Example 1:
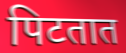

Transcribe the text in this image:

पिटतात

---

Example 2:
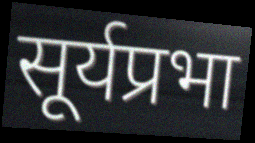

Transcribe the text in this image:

सूर्यप्रभा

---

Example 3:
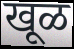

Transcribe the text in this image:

खूळ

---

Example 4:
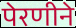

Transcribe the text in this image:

पेरणीने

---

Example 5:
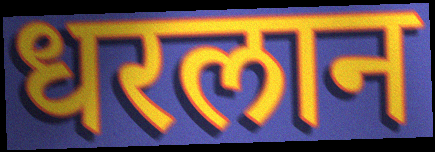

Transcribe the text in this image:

धरलान